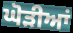
ਘੋੜੀਆਂ